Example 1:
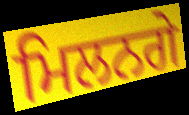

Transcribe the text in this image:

ਮਿਲਨਗੇ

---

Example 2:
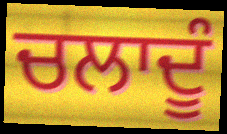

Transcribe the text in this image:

ਚਲਾਦੂੰ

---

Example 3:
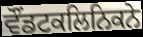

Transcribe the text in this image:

ਵੌਂਡਟਕਲਿਨਿਕਨੇ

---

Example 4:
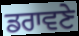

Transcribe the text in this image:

ਡਰਾਵਣੇ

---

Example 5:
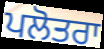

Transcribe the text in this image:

ਪਲੋਤਰਾ